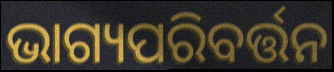
ଭାଗ୍ୟପରିବର୍ତ୍ତନ